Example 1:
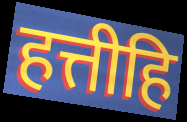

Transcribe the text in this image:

हत्तीहि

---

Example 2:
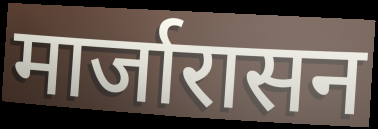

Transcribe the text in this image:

मार्जारासन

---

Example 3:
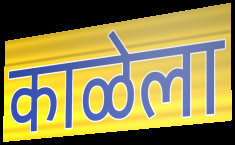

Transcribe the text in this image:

काळेला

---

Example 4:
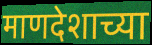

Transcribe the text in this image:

माणदेशाच्या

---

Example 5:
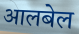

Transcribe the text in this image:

आलबेल